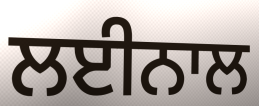
ਲਈਨਾਲ